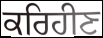
ਕਰਿਹੀਣ